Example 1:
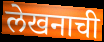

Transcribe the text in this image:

लेखनाची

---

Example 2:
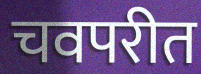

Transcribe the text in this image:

चवपरीत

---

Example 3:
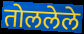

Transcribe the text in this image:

तोललेले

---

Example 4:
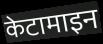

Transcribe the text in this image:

केटामाइन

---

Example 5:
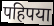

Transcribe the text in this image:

पहिपया